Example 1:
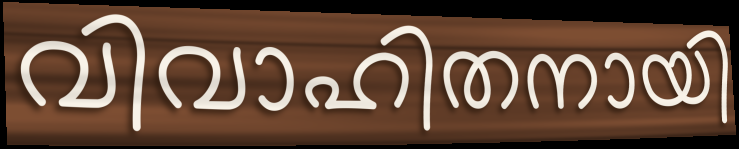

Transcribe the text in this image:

വിവാഹിതനായി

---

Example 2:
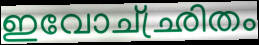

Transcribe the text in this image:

ഇവോച്ഛ്രിതം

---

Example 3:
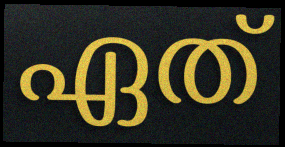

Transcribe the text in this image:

ഏത്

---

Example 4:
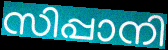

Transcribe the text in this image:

സിപ്പാനി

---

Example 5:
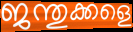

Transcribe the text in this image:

ജന്തുക്കളെ